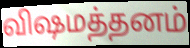
விஷமத்தனம்